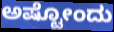
ಅಷ್ಟೋಂದು